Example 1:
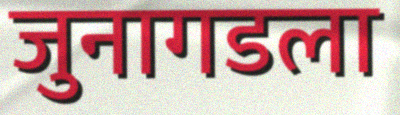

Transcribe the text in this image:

जुनागडला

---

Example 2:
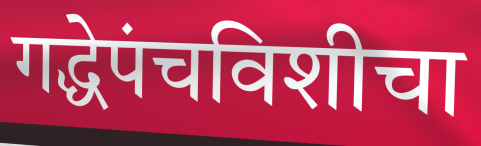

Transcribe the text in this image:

गद्धेपंचविशीचा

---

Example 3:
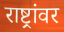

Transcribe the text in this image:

राष्ट्रांवर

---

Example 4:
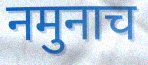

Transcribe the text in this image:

नमुनाच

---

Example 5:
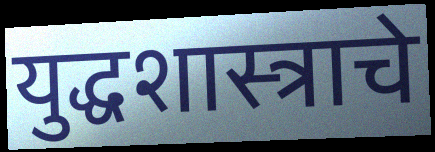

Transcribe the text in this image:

युद्धशास्त्राचे